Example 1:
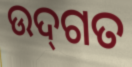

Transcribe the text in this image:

ଉଦ୍‌ଗତ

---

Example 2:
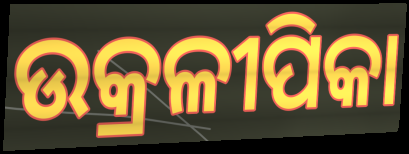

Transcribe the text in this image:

ଉକ୍ରଳୀପିକା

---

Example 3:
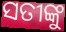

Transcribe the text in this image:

ସତୀଙ୍କୁ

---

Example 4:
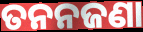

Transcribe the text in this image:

ତନନଜଣା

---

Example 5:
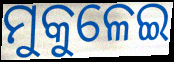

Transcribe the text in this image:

ମୁକୁଳେଇ